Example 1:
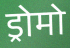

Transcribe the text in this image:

ड्रोमो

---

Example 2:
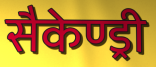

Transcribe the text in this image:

सैकेण्ड्री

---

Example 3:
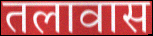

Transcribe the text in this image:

तलावास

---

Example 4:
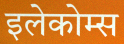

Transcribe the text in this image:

इलेकोम्स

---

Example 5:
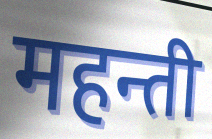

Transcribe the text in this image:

महन्ती